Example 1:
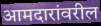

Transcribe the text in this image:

आमदारांवरील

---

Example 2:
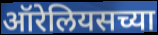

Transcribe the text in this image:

ऑरेलियसच्या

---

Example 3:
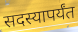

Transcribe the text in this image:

सदस्यापर्यंत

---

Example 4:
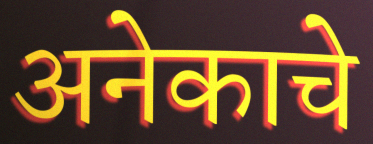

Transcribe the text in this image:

अनेकाचे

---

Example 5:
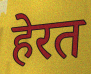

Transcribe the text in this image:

हेरत